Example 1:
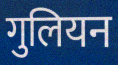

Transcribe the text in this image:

गुलियन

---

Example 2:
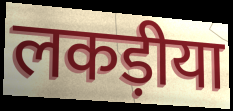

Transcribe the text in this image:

लकड़ीया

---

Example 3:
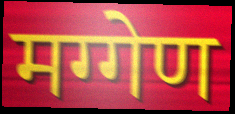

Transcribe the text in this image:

मग्गेण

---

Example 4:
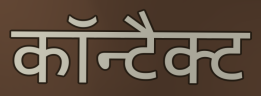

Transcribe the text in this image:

कॉन्टैक्ट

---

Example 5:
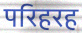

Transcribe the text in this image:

परिहरह